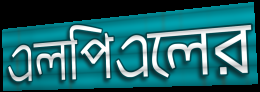
এলপিএলের